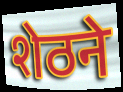
शेठने